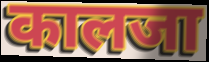
कालजा